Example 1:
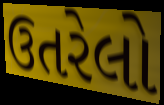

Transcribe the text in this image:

ઉતરેલો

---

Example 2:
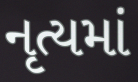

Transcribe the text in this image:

નૃત્યમાં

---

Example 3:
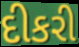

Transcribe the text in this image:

દીકરી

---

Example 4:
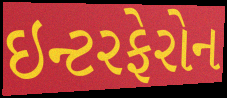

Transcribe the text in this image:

ઇન્ટરફેરોન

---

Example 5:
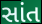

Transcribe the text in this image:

સાંત